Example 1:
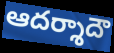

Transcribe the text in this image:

ఆదర్శాదౌ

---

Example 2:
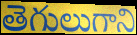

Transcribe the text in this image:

తెగులుగాని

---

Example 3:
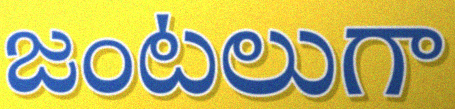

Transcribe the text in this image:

జంటలుగా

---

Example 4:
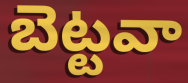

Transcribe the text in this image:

బెట్టవా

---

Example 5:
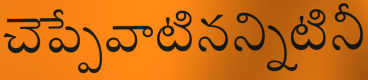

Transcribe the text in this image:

చెప్పేవాటినన్నిటినీ